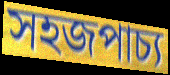
সহজপাচ্য